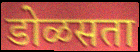
डोळसता